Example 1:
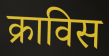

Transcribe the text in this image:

क्राविस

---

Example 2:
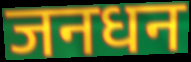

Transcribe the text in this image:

जनधन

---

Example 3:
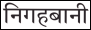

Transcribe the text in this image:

निगहबानी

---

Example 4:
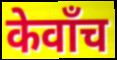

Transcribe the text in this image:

केवाँच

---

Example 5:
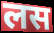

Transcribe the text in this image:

लस